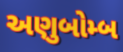
અણુબોમ્બ